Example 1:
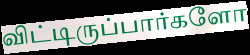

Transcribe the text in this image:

விட்டிருப்பார்களோ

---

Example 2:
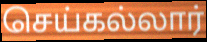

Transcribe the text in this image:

செய்கல்லார்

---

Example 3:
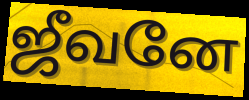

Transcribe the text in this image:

ஜீவனே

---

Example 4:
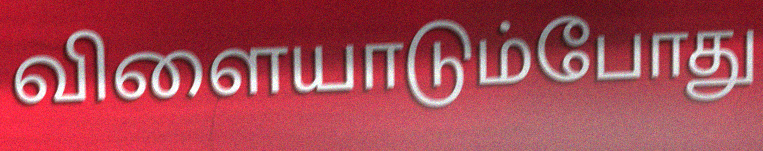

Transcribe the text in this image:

விளையாடும்போது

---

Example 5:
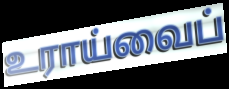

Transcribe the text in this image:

உராய்வைப்